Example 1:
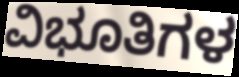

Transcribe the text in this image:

ವಿಭೂತಿಗಳ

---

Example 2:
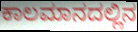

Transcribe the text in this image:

ಕಾಲಮಾನದಲ್ಲಿನ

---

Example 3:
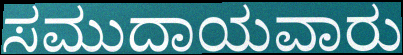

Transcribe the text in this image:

ಸಮುದಾಯವಾರು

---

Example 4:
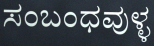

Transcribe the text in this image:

ಸಂಬಂಧವುಳ್ಳ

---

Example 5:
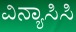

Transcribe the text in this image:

ವಿನ್ಯಾಸಿಸಿ